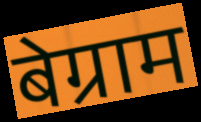
बेग्राम